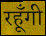
रहूँगी